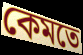
কেমতে